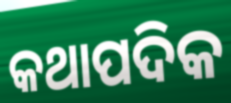
କଥାପଦିକ